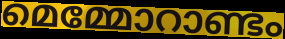
മെമ്മോറാണ്ടം